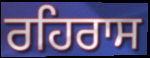
ਰਹਿਰਾਸ